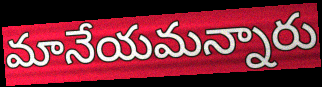
మానేయమన్నారు